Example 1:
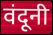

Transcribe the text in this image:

वंदूनी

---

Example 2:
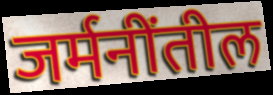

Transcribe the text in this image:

जर्मनींतील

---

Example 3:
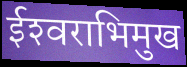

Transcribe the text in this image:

ईश्वराभिमुख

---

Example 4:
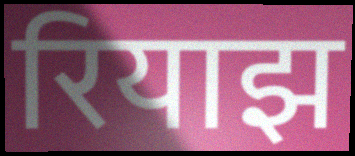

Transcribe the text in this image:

रियाझ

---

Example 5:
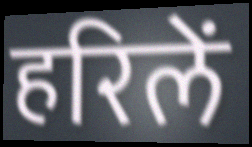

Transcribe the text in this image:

हरिलें